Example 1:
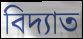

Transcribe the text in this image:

বিদ্যাত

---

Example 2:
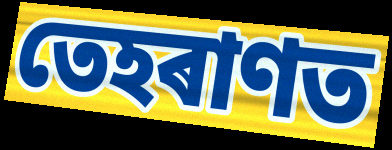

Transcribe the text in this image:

তেহৰাণত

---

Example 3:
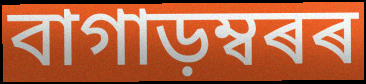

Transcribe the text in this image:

বাগাড়ম্বৰৰ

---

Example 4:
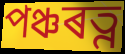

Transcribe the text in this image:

পঞ্চৰত্ন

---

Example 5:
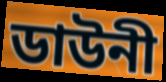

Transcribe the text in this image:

ডাউনী